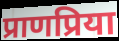
प्राणप्रिया